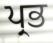
ਪ੍ਰਭ